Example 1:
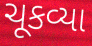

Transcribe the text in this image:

ચૂકવ્યા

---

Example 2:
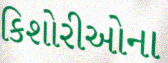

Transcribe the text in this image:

કિશોરીઓના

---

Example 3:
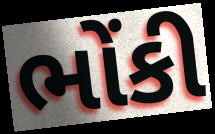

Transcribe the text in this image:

ભોંકી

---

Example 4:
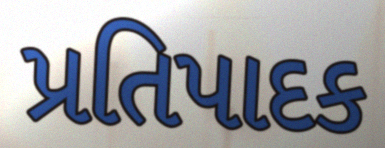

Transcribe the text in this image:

પ્રતિપાદક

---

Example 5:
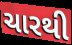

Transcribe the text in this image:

ચારથી